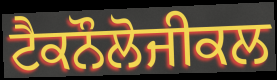
ਟੈਕਨੌਲੋਜੀਕਲ